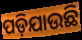
ପଡ଼ିଯାଉଛି